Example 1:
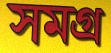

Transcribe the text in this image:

সমগ্ৰ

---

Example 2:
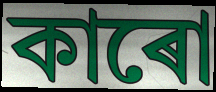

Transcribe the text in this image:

কাৰো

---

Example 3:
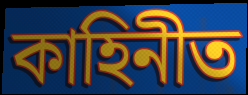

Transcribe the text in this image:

কাহিনীত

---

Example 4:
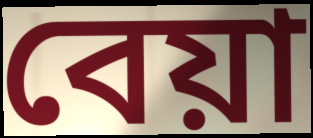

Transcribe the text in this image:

বেয়া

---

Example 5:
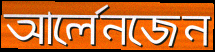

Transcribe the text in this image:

আৰ্লেনজেন